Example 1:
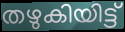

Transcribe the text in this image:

തഴുകിയിട്ട്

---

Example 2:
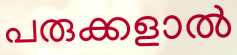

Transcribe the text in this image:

പരുക്കളാൽ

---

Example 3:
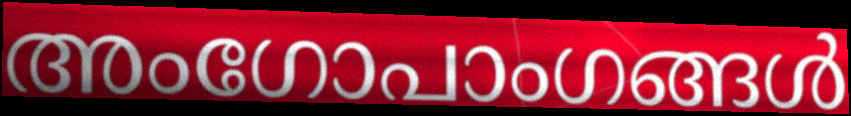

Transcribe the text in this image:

അംഗോപാംഗങ്ങൾ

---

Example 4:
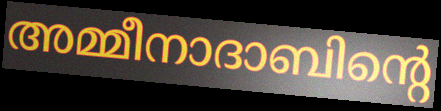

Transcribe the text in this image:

അമ്മീനാദാബിന്റെ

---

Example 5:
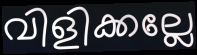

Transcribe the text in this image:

വിളിക്കല്ലേ